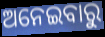
ଅନେଇବାରୁ